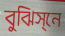
বুঝিস্‌নে